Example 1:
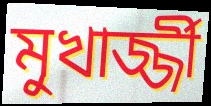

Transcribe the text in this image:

মুখার্জ্জী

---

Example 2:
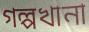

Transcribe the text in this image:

গল্পখানা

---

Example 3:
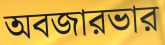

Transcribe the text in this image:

অবজারভার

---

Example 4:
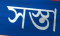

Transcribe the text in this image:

সস্তা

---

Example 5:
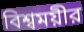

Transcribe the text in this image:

বিশ্বময়ীর